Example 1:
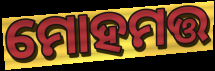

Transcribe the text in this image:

ମୋହମତ୍ତ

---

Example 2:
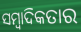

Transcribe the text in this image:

ସମ୍ୱାଦିକତାର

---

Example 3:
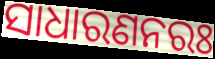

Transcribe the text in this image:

ସାଧାରଣନରଃ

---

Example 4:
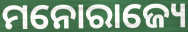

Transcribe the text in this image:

ମନୋରାଜ୍ୟେ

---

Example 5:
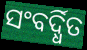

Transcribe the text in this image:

ସଂବର୍ଦ୍ଧିତ